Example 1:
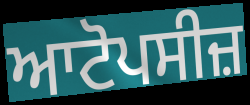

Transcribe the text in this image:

ਆਟੋਪਸੀਜ਼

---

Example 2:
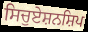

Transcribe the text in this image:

ਸਿਚੁਏਸ਼ਨਸ਼ਿਪ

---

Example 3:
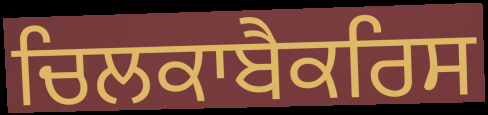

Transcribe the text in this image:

ਚਿਲਕਾਬੈਕਰਿਸ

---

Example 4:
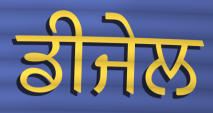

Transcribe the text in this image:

ਡੀਜੇਲ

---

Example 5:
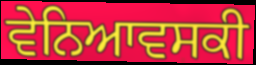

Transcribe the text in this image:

ਵੇਨਿਆਵਸਕੀ